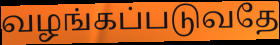
வழங்கப்படுவதே